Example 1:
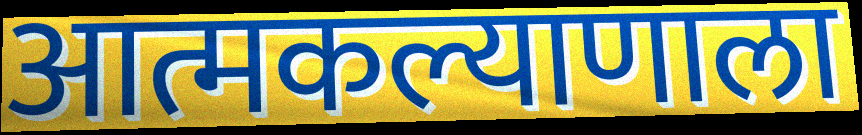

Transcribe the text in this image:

आत्मकल्याणाला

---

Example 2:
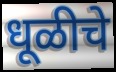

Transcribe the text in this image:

धूळीचे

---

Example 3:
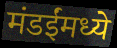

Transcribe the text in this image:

मंडईंमध्ये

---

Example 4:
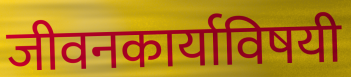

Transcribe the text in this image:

जीवनकार्याविषयी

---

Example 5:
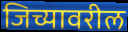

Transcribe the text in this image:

जिच्यावरील